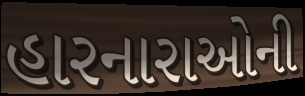
હારનારાઓની